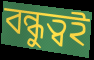
বন্ধুত্বই